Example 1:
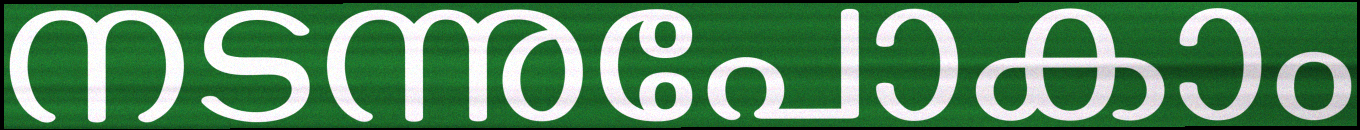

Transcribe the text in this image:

നടന്നുപോകാം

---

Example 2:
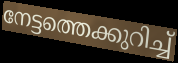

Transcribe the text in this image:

നേട്ടത്തെക്കുറിച്ച്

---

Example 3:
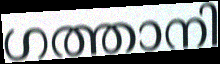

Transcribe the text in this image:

ഗത്താനി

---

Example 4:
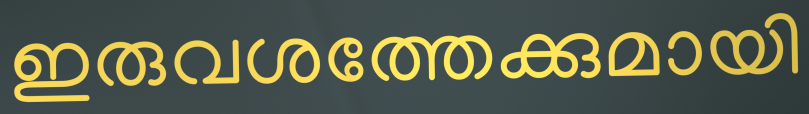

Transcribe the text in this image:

ഇരുവശത്തേക്കുമായി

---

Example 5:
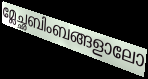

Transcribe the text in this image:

മ്ലേച്ഛബിംബങ്ങളാലോ